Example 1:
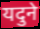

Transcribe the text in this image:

यदुने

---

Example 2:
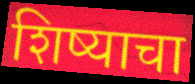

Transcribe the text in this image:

शिष्याचा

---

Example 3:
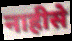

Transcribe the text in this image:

नाहीसे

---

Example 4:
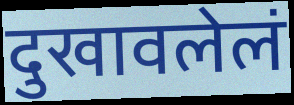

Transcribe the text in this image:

दुखावलेलं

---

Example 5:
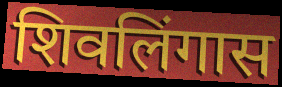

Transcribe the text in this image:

शिवलिंगास